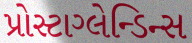
પ્રોસ્ટાગ્લેન્ડિન્સ